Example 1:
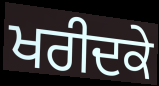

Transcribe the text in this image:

ਖਰੀਦਕੇ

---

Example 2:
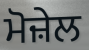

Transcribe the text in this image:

ਮੋਜ਼ੇਲ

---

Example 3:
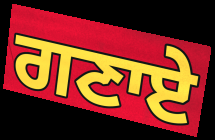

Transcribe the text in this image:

ਗਣਾਏ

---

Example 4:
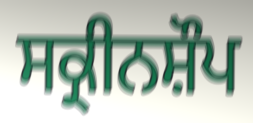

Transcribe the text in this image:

ਸਕ੍ਰੀਨਸ਼ੌਪ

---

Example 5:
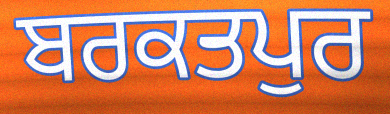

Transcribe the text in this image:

ਬਰਕਤਪੁਰ